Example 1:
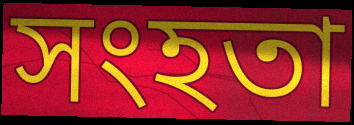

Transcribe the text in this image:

সংহতা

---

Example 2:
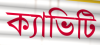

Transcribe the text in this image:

ক্যাভিটি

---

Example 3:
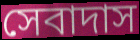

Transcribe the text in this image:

সেবাদাস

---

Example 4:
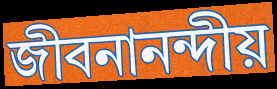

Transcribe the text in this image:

জীবনানন্দীয়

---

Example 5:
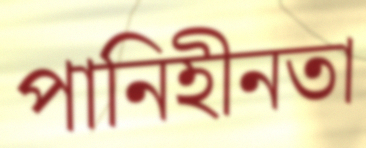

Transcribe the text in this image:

পানিহীনতা